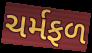
ચર્મફળ